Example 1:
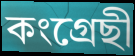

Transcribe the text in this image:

কংগ্ৰেছী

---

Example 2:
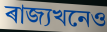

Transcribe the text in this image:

ৰাজ্যখনেও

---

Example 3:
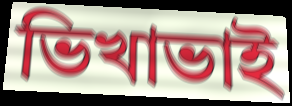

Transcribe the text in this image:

ভিখাভাই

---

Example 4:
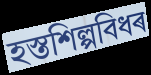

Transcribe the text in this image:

হস্তশিল্পবিধৰ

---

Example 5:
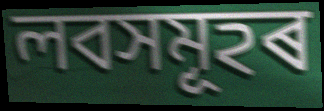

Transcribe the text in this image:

লবসমূহৰ